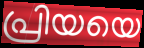
പ്രിയയെ